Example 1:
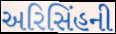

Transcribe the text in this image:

અરિસિંહની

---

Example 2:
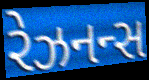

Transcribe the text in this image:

રેઝનન્સ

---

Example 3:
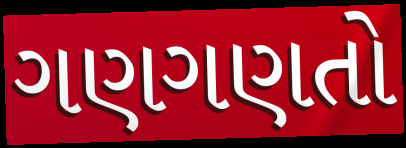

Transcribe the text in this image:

ગણગણતો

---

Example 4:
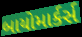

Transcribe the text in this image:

બાયોમાર્કર્સ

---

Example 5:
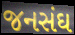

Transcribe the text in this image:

જનસંઘ